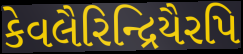
કેવલૈરિન્દ્રિયૈરપિ